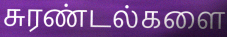
சுரண்டல்களை